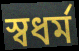
স্বধর্ম